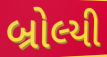
બ્રોલ્યી